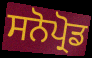
ਸਨੋਪ੍ਰੋਡ